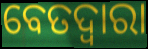
ବେତଦ୍ୱାରା